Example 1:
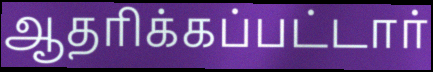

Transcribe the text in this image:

ஆதரிக்கப்பட்டார்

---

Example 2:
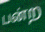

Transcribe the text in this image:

பன்ற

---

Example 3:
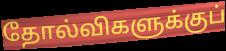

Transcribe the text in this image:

தோல்விகளுக்குப்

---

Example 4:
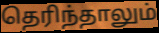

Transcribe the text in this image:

தெரிந்தாலும்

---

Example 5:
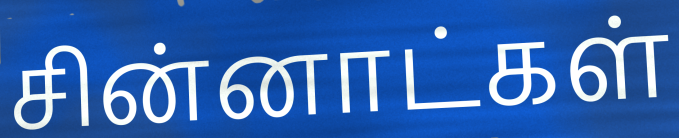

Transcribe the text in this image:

சின்னாட்கள்